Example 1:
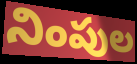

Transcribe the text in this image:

నింపుల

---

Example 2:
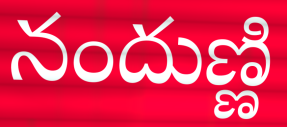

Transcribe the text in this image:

నందుణ్ణి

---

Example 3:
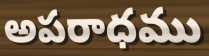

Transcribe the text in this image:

అపరాధము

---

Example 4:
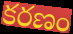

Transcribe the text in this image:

కరణం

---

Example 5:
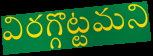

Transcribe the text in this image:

విరగ్గొట్టమని